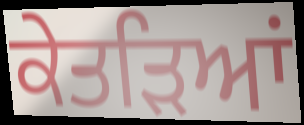
ਕੇਤੜਿਆਂ